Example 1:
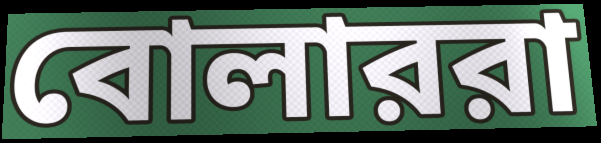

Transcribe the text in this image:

বোলাররা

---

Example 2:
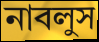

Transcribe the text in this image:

নাবলুস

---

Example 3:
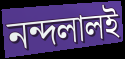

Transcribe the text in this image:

নন্দলালই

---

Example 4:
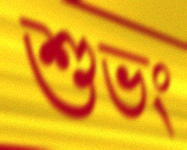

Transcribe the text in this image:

শুভং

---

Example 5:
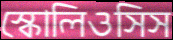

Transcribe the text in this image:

স্কোলিওসিস